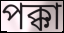
পক্কা